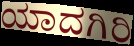
ಯಾದಗಿರಿ